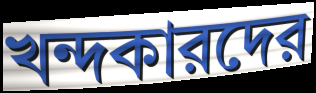
খন্দকারদের